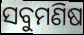
ସବୁମଣିଷ